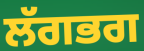
ਲੱਗਭਗ